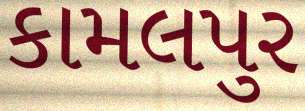
કામલપુર